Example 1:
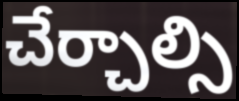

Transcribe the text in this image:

చేర్చాల్సి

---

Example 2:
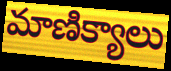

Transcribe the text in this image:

మాణిక్యాలు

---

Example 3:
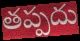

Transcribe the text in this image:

తప్పదు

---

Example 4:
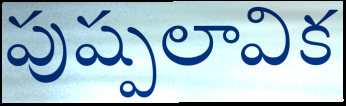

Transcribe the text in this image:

పుష్పలావిక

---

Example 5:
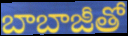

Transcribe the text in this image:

బాబాజీతో